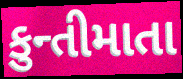
કુન્તીમાતા